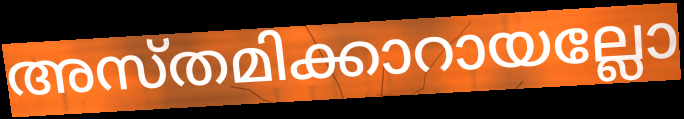
അസ്തമിക്കാറായല്ലോ